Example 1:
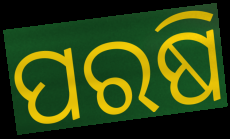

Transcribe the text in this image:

ପରଷି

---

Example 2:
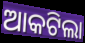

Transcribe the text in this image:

ଆକଟିଲା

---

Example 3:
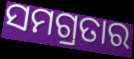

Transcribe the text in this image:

ସମଗ୍ରତାର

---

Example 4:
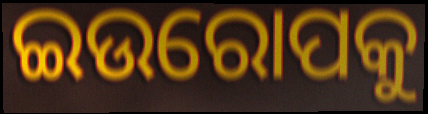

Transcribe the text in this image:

ଇଉରୋପକୁ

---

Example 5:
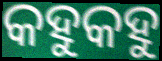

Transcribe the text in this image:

କହୁକହୁ